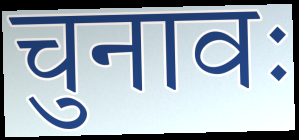
चुनावः